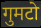
गुमटो